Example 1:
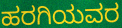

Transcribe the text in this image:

ಹರಗಿಯವರ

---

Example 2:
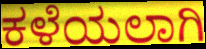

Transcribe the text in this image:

ಕಳೆಯಲಾಗಿ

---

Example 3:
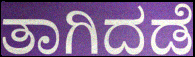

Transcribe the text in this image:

ತಾಗಿದಡೆ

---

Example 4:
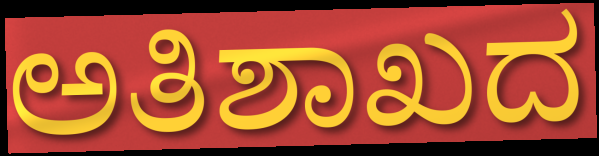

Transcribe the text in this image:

ಅತಿಶಾಖದ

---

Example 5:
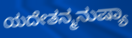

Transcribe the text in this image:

ಯದೇತನ್ಮನುಷ್ಯಾ